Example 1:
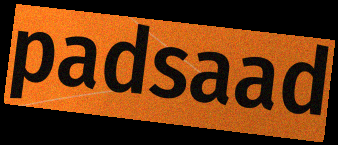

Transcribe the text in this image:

padsaad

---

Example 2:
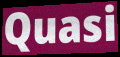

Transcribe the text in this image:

Quasi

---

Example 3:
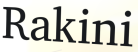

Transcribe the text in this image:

Rakini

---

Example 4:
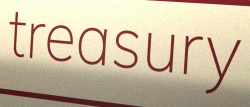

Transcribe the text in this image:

treasury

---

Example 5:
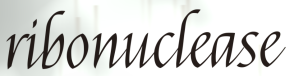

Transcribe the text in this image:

ribonuclease